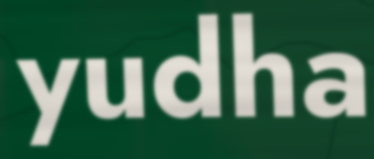
yudha